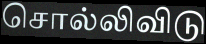
சொல்லிவிடு